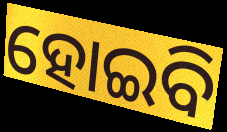
ହୋଇବି